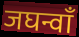
जघन्वाँ